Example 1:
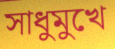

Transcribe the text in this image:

সাধুমুখে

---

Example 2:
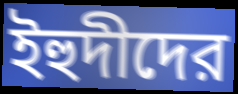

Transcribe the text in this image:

ইহুদীদের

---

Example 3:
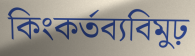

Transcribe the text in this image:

কিংকর্তব্যবিমুঢ়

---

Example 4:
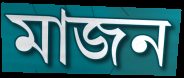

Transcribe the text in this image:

মাজন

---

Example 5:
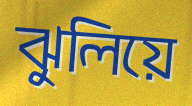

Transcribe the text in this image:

ঝুলিয়ে